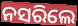
ନସରିଲେ